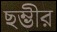
ছম্ভীর